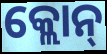
କ୍ଲୋନ୍